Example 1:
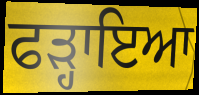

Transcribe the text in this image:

ਫੜ੍ਹਾਇਆ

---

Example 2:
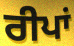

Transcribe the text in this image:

ਰੀਪਾਂ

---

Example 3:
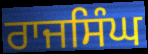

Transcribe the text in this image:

ਰਾਜਸਿੰਘ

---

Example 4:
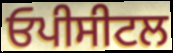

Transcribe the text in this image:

ਓਪੀਸੀਟਲ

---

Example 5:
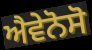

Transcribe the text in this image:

ਐਵੇਨੋਸੋ